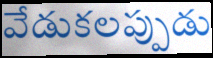
వేడుకలప్పుడు